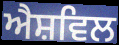
ਐਸ਼ਵਿਲ